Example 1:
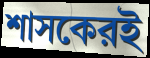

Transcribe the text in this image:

শাসকেরই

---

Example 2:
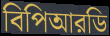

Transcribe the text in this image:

বিপিআরডি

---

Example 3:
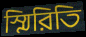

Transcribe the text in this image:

স্মিরিতি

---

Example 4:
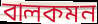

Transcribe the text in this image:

বালকমন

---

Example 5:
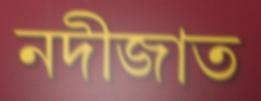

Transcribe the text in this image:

নদীজাত